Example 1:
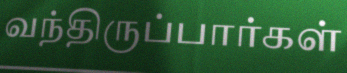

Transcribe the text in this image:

வந்திருப்பார்கள்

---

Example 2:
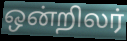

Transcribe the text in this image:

ஒன்றிலர்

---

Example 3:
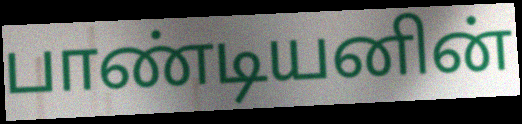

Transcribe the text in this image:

பாண்டியனின்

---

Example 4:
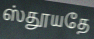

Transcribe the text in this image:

ஸ்தூயதே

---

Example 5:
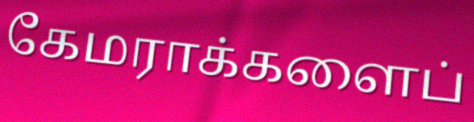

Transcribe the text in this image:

கேமராக்களைப்